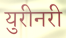
युरीनरी